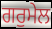
ਗਰੁਮੇਲ